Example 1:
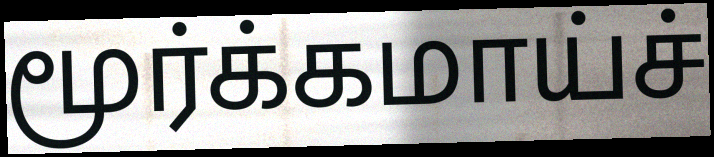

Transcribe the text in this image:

மூர்க்கமாய்ச்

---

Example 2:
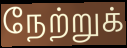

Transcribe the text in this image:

நேற்றுக்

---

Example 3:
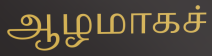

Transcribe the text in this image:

ஆழமாகச்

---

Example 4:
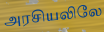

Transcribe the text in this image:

அரசியலிலே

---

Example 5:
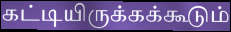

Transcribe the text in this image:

கட்டியிருக்கக்கூடும்